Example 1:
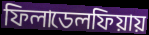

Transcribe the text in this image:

ফিলাডেলফিয়ায়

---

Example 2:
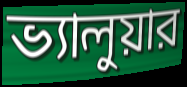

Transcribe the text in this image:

ভ্যালুয়ার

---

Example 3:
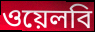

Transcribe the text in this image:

ওয়েলবি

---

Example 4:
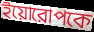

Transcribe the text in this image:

ইয়োরোপকে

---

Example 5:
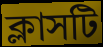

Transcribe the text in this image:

ক্লাসটি